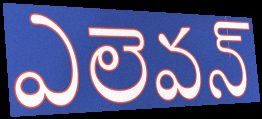
ఎలెవన్